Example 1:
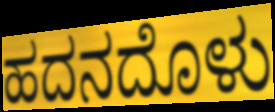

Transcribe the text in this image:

ಹದನದೊಳು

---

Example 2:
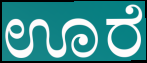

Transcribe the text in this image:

ಊರೆ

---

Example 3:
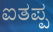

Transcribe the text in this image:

ಐತಪ್ಪ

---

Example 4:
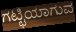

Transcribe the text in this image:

ಗಟ್ಟಿಯಾಗುವ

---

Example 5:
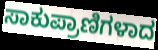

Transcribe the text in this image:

ಸಾಕುಪ್ರಾಣಿಗಳಾದ